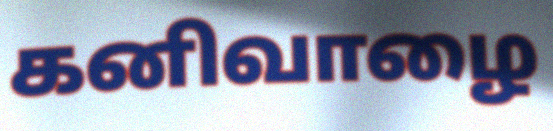
கனிவாழை